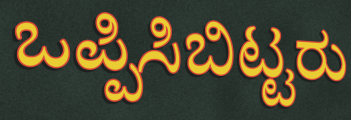
ಒಪ್ಪಿಸಿಬಿಟ್ಟರು